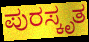
ಪುರಸ್ಕೃತ